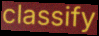
classify